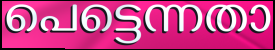
പെട്ടെന്നതാ